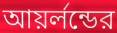
আয়র্লন্ডের